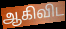
ஆகிவிட